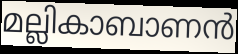
മല്ലികാബാണൻ